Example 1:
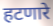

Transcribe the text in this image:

हटणारे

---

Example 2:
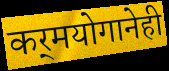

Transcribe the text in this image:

कर्मयोगानेही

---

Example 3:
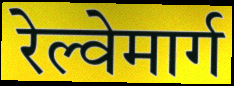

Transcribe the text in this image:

रेल्वेमार्ग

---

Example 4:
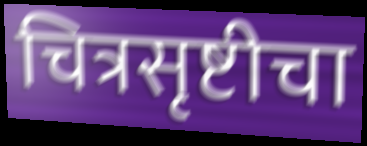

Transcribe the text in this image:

चित्रसृष्टीचा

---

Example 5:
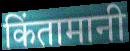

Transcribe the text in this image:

किंतामानी